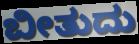
ಬೀತುದು